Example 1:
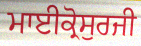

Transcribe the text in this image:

ਮਾਈਕ੍ਰੋਸੁਰਜੀ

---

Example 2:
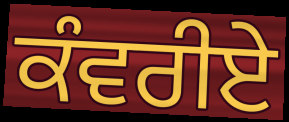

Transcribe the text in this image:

ਕੰਵਰੀਏ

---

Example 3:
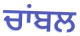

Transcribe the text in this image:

ਚਾਂਬਲ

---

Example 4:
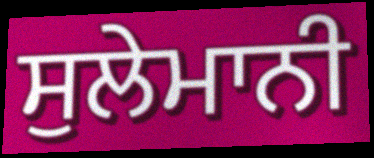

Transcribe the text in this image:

ਸੁਲੇਮਾਨੀ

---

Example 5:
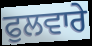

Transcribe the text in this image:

ਫੁਲਵਾਰੇ